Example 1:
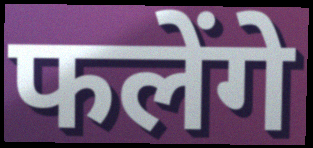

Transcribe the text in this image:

फलेंगे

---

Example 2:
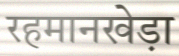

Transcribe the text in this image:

रहमानखेड़ा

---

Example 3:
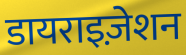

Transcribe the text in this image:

डायराइज़ेशन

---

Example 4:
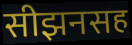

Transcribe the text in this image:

सीझनसह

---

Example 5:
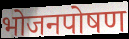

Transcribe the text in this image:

भोजनपोषण